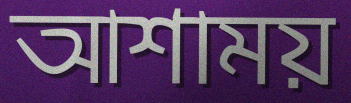
আশাময়